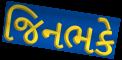
જિનભકે